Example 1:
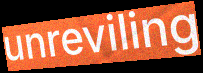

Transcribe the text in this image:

unreviling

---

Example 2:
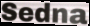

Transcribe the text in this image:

Sedna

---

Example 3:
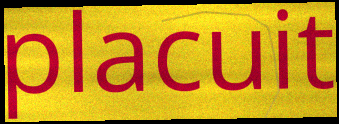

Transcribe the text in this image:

placuit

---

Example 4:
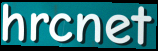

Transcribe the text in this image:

hrcnet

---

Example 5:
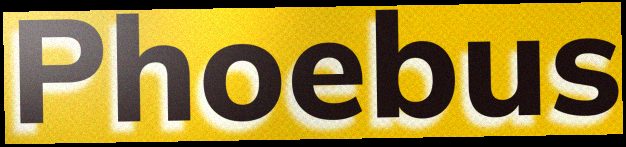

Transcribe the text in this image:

Phoebus